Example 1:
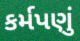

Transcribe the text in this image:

કર્મપણું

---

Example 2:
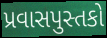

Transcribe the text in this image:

પ્રવાસપુસ્તકો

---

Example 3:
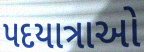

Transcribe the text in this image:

પદયાત્રાઓ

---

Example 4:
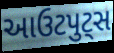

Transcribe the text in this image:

આઉટપુટ્સ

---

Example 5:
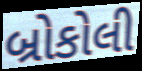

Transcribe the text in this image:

બ્રોકોલી